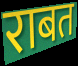
राबत